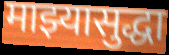
माझ्यासुद्धा